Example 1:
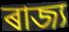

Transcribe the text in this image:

ৰাজ্য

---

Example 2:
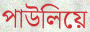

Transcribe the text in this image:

পাউলিয়ে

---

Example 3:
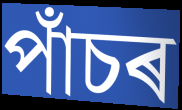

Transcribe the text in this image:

পাঁচৰ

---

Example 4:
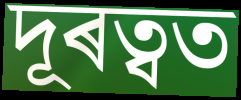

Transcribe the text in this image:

দূৰত্বত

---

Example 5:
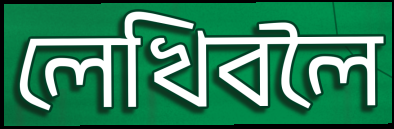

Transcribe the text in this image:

লেখিবলৈ